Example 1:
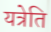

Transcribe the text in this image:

यत्रेति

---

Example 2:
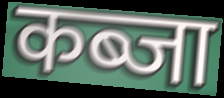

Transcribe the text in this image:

कब्जा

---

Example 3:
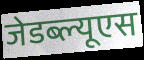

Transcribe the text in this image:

जेडब्ल्यूएस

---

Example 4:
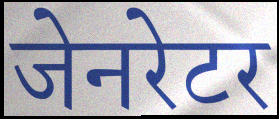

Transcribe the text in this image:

जेनरेटर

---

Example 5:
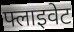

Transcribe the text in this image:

फ्लाइवेट